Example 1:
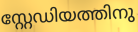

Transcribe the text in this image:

സ്റ്റേഡിയത്തിനു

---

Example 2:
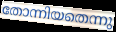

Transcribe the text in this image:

തോന്നിയതെന്നു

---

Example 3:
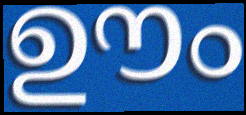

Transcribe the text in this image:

ഊം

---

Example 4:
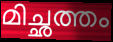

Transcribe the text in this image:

മിച്ഛത്തം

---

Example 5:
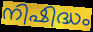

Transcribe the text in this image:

നിഷിദ്ധം